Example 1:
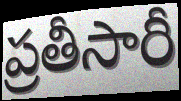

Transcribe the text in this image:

ప్రతీసారీ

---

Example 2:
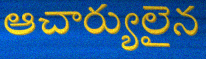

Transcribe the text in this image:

ఆచార్యులైన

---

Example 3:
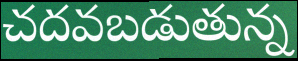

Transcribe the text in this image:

చదవబడుతున్న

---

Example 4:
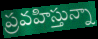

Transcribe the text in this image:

ప్రవహిస్తున్నా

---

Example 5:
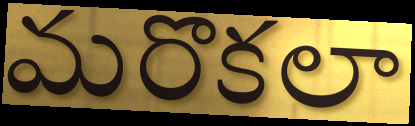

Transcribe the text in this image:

మరొకలా